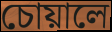
চোয়ালে